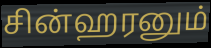
சின்ஹரனும்